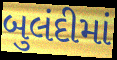
બુલંદીમાં